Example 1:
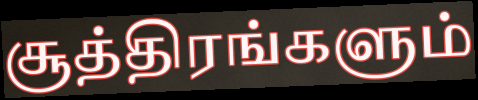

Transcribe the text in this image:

சூத்திரங்களும்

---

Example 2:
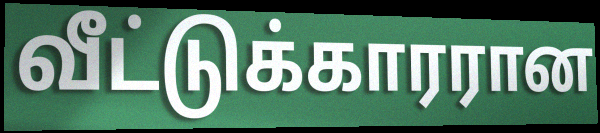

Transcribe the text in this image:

வீட்டுக்காரரான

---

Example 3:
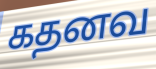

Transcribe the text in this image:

கதனவ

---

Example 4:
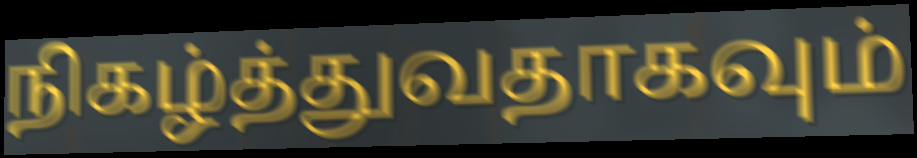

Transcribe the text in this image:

நிகழ்த்துவதாகவும்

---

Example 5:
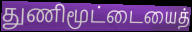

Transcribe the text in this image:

துணிமூட்டையைத்